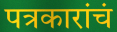
पत्रकारांचं